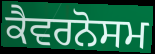
ਕੈਵਰਨੋਸਮ